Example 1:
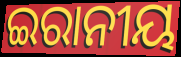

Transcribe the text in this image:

ଇରାନୀୟ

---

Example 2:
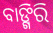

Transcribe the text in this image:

ବାଙ୍ଗିରି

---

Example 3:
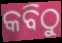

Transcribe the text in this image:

କବିଠୁ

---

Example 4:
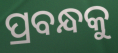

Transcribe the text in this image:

ପ୍ରବନ୍ଧକୁ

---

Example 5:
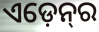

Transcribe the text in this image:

ଏଡ଼େନ୍‍ର